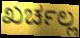
ಖರ್ಚಲ್ಲ